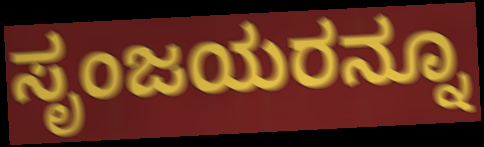
ಸೃಂಜಯರನ್ನೂ